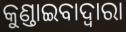
କୁଣ୍ଡାଇବାଦ୍ୱାରା